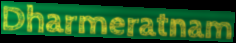
Dharmeratnam